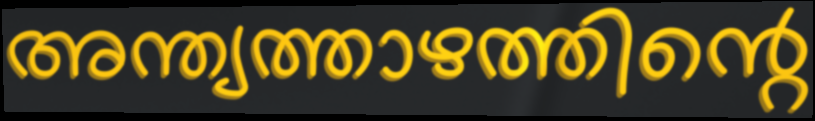
അന്ത്യത്താഴത്തിന്റെ